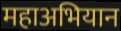
महाअभियान